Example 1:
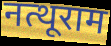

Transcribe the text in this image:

नत्थूराम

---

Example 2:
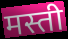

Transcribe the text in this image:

मस्ती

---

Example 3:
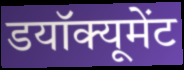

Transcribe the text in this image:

डयॉक्‍यूमेंट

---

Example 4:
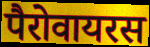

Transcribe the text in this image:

पैरोवायरस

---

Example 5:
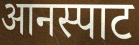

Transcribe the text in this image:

आनस्पाट